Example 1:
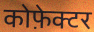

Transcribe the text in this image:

कोफ़ेक्टर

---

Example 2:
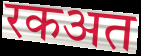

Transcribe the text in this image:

रकअत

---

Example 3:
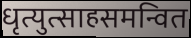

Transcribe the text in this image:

धृत्युत्साहसमन्वित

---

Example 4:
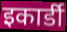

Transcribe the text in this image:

इकार्डी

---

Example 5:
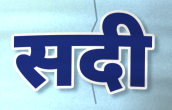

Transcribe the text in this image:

सदी